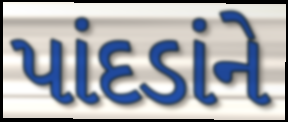
પાંદડાંને